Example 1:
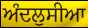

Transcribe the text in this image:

ਅੰਦਲੁਸੀਆ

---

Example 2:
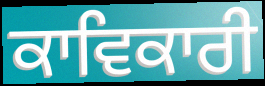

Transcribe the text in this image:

ਕਾਵਿਕਾਰੀ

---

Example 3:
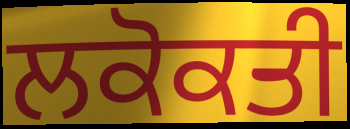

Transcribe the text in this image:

ਲਕੋਕਤੀ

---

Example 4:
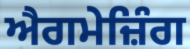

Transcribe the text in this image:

ਐਗਮੇਜ਼ਿੰਗ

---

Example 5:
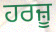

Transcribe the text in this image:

ਹਰਜ਼ੂ